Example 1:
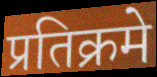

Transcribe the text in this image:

प्रतिक्रमे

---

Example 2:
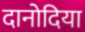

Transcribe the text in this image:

दानोदिया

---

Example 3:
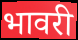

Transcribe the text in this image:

भावरी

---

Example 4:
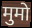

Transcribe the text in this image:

मुमो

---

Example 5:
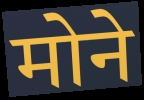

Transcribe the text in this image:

मोने